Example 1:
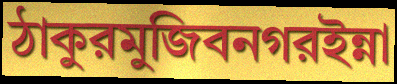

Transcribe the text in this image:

ঠাকুরমুজিবনগরইন্না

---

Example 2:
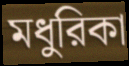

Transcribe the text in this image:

মধুরিকা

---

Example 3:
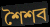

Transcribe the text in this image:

শৈশব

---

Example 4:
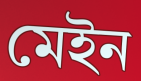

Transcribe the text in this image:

মেইন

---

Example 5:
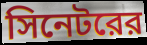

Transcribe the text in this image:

সিনেটরের